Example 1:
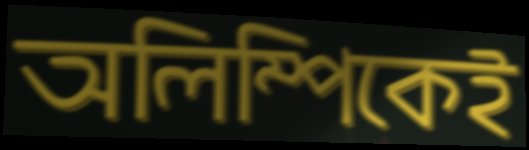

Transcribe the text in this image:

অলিম্পিকেই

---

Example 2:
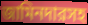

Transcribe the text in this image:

জামিনদারসহ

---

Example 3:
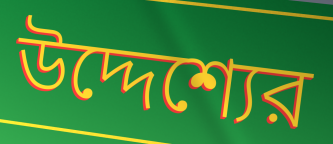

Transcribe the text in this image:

উদ্দেশ্যের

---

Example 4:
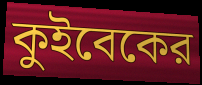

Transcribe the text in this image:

কুইবেকের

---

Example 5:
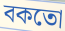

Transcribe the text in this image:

বকতো